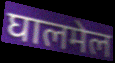
घालमेल